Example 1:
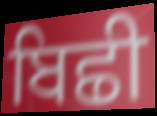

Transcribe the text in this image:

ਬਿਛੀ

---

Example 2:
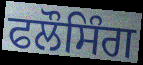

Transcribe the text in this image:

ਫਲੌਸਿੰਗ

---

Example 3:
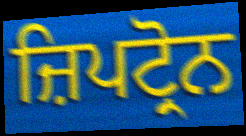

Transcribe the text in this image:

ਜ਼ਿਪਟ੍ਰੋਨ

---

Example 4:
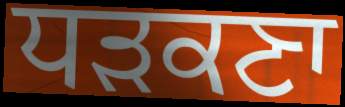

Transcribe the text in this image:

ਧੜਕਣਾ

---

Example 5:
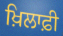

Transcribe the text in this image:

ਖ਼ਿਲਾਫ਼ੀ